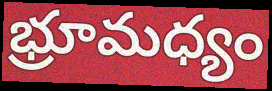
భ్రూమధ్యం